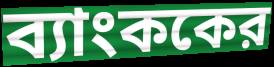
ব্যাংককের